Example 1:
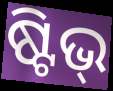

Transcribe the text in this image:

ଷ୍ଟିଭ୍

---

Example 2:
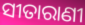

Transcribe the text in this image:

ସୀତାରାଣୀ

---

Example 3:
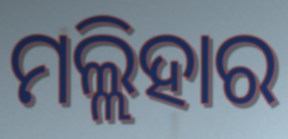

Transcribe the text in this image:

ମଲ୍ଲିହାର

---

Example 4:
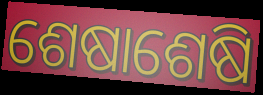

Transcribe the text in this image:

ଶେଷାଶେଷି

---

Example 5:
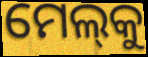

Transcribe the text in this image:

ମେଲ୍‌କୁ